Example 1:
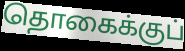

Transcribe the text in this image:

தொகைக்குப்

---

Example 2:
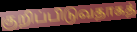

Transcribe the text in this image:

குறிப்பிடுவதாகத்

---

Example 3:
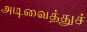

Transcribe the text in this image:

அடிவைத்துச்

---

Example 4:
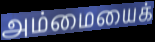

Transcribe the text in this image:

அம்மையைக்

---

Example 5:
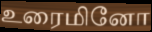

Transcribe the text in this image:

உரைமினோ